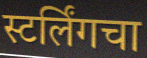
स्टर्लिंगचा